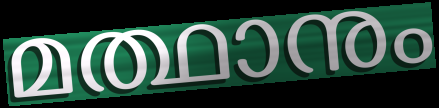
മത്ഥാനും